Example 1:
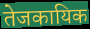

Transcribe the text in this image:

तेजकायिक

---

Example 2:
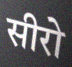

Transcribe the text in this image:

सीरो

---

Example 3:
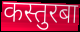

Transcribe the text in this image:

कस्तुरबा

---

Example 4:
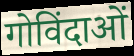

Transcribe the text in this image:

गोविंदाओं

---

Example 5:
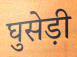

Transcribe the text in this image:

घुसेड़ी